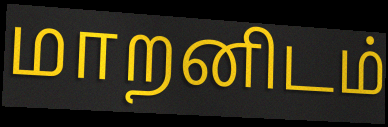
மாறனிடம்